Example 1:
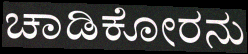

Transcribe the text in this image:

ಚಾಡಿಕೋರನು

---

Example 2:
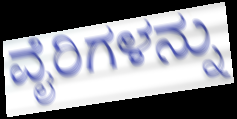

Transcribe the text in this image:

ವೈರಿಗಳನ್ನು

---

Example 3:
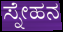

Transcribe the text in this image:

ಸ್ನೇಹನ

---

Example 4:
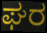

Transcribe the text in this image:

ಘರ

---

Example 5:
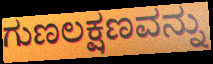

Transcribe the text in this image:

ಗುಣಲಕ್ಷಣವನ್ನು